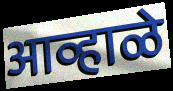
आव्हाळे